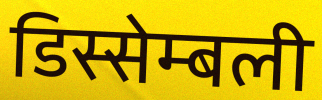
डिस्सेम्बली